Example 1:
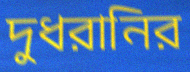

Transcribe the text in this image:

দুধরানির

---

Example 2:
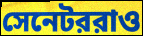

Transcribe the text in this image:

সেনেটররাও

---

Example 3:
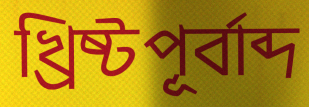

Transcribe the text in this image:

খ্রিষ্টপূর্বাব্দ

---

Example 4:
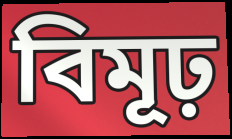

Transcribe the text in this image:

বিমূঢ়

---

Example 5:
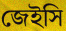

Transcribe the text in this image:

জেইসি